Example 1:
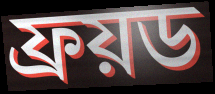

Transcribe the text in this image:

ফ্ৰয়ড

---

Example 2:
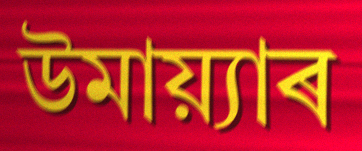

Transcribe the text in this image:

উমায়্যাৰ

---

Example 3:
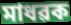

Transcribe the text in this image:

মাধৱক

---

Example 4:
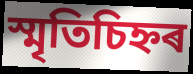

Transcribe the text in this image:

স্মৃতিচিহ্নৰ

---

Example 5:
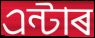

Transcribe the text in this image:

এন্টাৰ